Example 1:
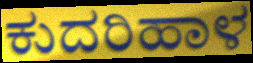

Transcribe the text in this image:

ಕುದರಿಹಾಳ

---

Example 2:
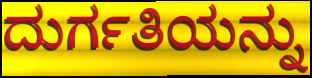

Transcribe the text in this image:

ದುರ್ಗತಿಯನ್ನು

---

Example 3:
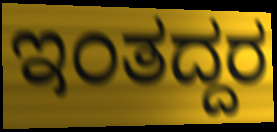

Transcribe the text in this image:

ಇಂತದ್ದರ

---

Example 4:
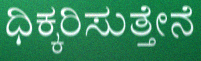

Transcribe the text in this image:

ಧಿಕ್ಕರಿಸುತ್ತೇನೆ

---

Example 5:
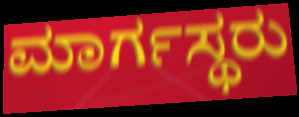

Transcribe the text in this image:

ಮಾರ್ಗಸ್ಥರು